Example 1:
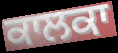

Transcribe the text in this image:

ਕਾਲਕਾ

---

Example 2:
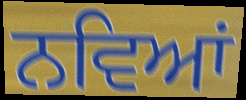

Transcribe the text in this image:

ਨਵਿਆਂ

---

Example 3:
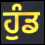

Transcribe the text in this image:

ਹੁੰਡ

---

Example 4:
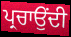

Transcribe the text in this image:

ਪ੍ਰਚਾਉਂਦੀ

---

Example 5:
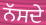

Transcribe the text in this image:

ਨੱਸਦੇ